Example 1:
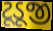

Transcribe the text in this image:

ટૂડૂજી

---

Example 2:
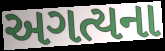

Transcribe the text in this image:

અગત્યના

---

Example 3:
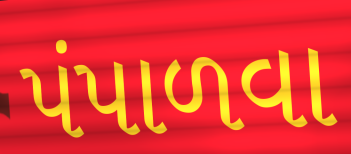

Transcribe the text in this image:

પંપાળવા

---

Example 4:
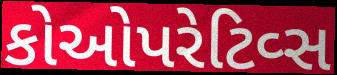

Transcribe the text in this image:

કોઓપરેટિવ્સ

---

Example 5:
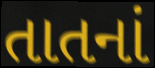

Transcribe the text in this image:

તાતનાં